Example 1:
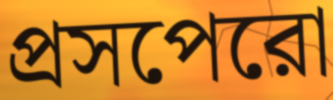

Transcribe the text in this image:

প্রসপেরো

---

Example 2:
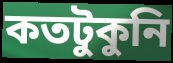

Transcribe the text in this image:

কতটুকুনি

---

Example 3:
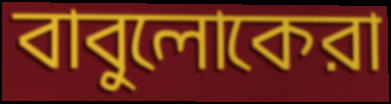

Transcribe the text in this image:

বাবুলোকেরা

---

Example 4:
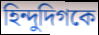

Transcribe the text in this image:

হিন্দুদিগকে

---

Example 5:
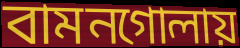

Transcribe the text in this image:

বামনগোলায়